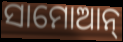
ସାମୋଆନ୍